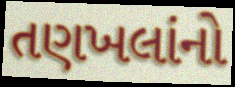
તણખલાંનો